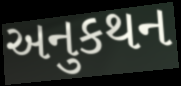
અનુકથન